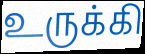
உருக்கி